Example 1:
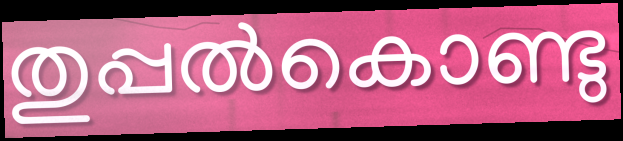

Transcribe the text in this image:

തുപ്പൽകൊണ്ടു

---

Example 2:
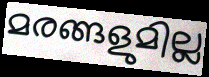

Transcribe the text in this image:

മരങ്ങളുമില്ല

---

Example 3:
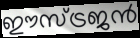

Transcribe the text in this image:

ഈസ്ട്രജൻ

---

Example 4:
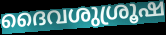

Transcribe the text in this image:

ദൈവശുശ്രൂഷ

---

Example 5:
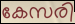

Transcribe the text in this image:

കേസരി